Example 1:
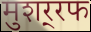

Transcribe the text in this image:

मुशर्रफ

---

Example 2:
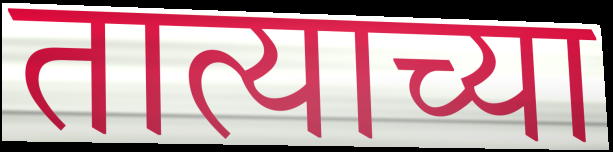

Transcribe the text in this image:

तात्याच्या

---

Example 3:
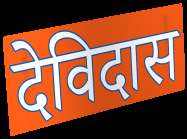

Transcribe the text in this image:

देविदास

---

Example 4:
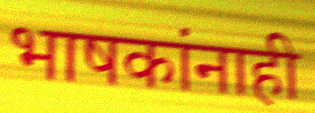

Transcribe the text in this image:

भाषकांनाही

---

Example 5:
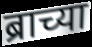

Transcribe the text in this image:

ब्राच्या